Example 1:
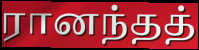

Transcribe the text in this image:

ரானந்தத்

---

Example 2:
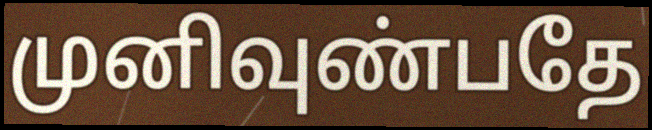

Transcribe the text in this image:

முனிவுண்பதே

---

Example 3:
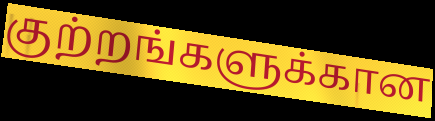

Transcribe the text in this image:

குற்றங்களுக்கான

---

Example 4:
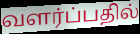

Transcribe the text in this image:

வளர்ப்பதில்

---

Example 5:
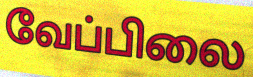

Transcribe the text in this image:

வேப்பிலை